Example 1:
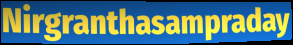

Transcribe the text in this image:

Nirgranthasampraday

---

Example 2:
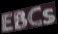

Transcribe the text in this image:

EBCs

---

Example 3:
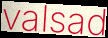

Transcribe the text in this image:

valsad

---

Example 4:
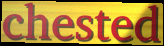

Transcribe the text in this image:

chested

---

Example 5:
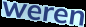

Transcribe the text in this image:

weren